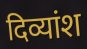
दिव्यांश